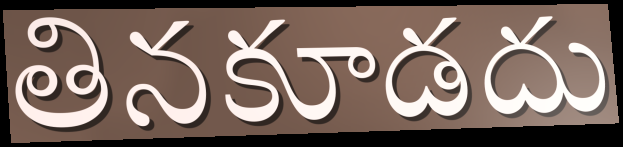
తినకూడదు